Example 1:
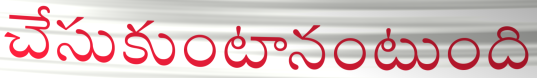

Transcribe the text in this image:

చేసుకుంటానంటుంది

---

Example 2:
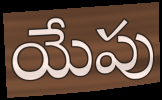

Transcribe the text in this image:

యేపు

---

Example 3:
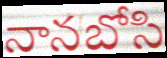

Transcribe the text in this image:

నానబోసి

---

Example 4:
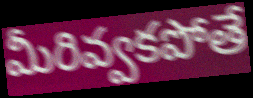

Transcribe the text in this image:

మీరివ్వకపోతే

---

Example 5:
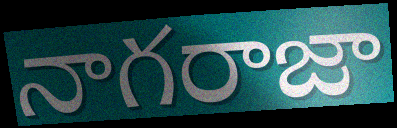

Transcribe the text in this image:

నాగరాజా